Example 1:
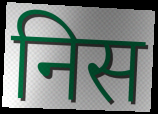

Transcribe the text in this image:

निस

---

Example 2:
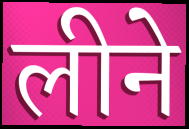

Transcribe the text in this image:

लीने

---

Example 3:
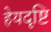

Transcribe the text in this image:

हेयदृष्टि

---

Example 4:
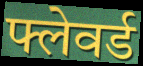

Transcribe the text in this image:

फ्लेवर्ड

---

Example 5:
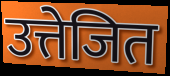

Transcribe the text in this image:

उत्तेजित